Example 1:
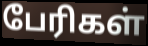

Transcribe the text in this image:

பேரிகள்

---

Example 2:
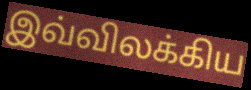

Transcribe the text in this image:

இவ்விலக்கிய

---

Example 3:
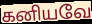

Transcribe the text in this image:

கனியவே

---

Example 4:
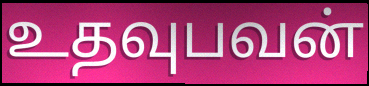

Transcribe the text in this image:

உதவுபவன்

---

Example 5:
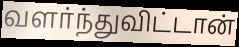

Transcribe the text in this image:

வளர்ந்துவிட்டான்